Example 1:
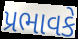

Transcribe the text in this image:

પ્રભાવકે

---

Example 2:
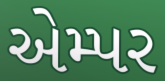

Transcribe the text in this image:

એમ્પર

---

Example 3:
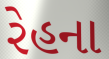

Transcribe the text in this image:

રેહના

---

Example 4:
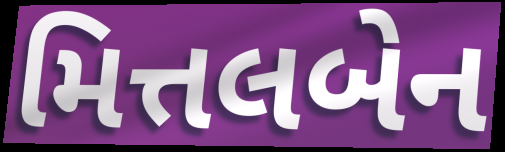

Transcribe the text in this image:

મિત્તલબેન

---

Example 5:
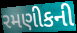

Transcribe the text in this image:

રમણીકની